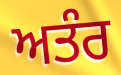
ਅਤੰਰ